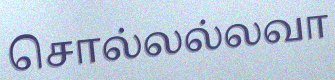
சொல்லல்லவா